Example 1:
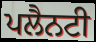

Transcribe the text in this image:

ਪਲੈਨਟੀ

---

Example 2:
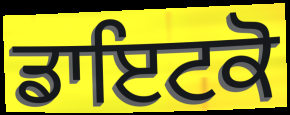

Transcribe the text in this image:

ਡਾਇਟਕੋ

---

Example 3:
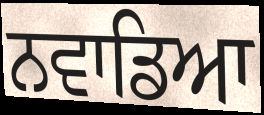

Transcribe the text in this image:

ਨਵਾਡਿਆ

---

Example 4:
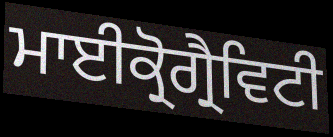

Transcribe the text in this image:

ਮਾਈਕ੍ਰੋਗ੍ਰੈਵਿਟੀ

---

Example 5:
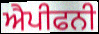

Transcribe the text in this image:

ਐਪੀਫਨੀ